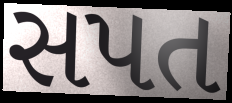
સપત